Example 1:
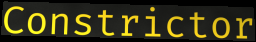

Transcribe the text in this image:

Constrictor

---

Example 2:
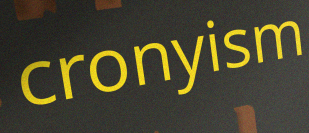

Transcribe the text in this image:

cronyism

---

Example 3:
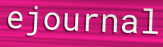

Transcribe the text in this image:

ejournal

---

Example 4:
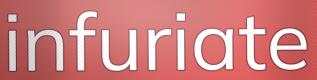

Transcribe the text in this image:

infuriate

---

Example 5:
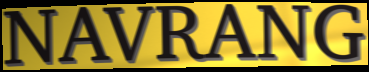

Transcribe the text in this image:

NAVRANG